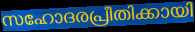
സഹോദരപ്രീതിക്കായി